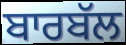
ਬਾਰਬੱਲ